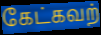
கேட்கவற்